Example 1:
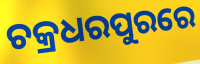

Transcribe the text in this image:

ଚକ୍ରଧରପୁରରେ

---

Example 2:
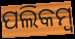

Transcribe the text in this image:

ପଲିକମ୍ବ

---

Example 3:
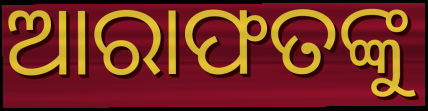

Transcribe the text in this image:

ଆରାଫତଙ୍କୁ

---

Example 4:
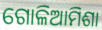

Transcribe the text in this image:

ଗୋଳିଆମିଶା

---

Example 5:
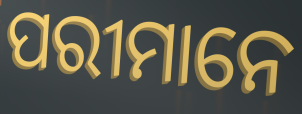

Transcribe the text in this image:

ପରୀମାନେ